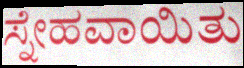
ಸ್ನೇಹವಾಯಿತು